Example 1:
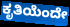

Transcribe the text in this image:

ಕೃತಿಯೆಂದೇ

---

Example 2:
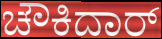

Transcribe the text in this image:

ಚೌಕಿದಾರ್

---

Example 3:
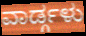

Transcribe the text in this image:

ವಾರ್ಡ್ಗಳು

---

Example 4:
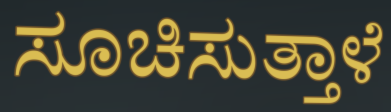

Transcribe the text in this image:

ಸೂಚಿಸುತ್ತಾಳೆ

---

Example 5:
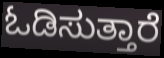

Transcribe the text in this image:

ಓಡಿಸುತ್ತಾರೆ